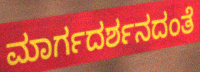
ಮಾರ್ಗದರ್ಶನದಂತೆ